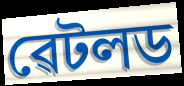
ৱেটলড